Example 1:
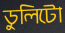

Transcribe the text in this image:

ডুলিটো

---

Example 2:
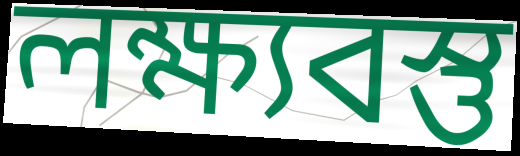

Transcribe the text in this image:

লক্ষ্যবস্তু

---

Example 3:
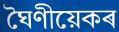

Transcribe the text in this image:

ঘৈণীয়েকৰ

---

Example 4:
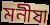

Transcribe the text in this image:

মনীষা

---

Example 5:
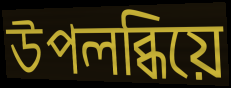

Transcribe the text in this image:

উপলব্ধিয়ে